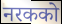
नरकको